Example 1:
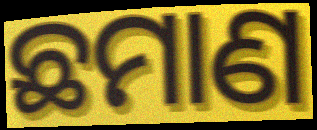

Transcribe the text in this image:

ଛମାଣ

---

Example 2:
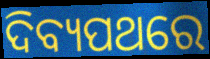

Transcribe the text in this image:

ଦିବ୍ୟପଥରେ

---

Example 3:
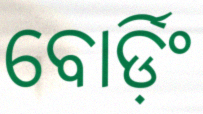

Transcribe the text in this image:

ବୋର୍ଡ଼ିଂ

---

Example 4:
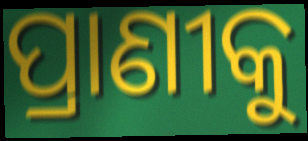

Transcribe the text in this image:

ପ୍ରାଣୀକୁ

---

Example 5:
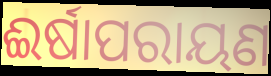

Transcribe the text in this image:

ଈର୍ଷାପରାୟଣ